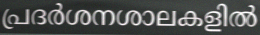
പ്രദർശനശാലകളിൽ